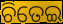
ଚିତେଇ